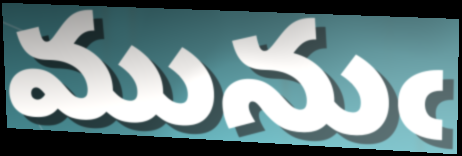
మునుఁ